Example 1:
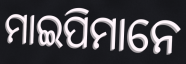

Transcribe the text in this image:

ମାଇପିମାନେ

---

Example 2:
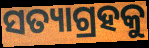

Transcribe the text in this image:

ସତ୍ୟାଗ୍ରହକୁ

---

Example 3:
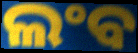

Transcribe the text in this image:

ଲଂବ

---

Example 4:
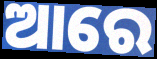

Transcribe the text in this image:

ଆରେ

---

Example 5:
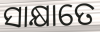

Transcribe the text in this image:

ସାକ୍ଷାତେ